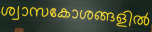
ശ്വാസകോശങ്ങളിൽ